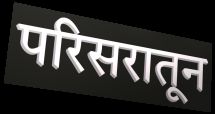
परिसरातून